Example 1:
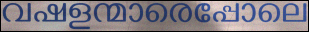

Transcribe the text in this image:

വഷളന്മാരെപ്പോലെ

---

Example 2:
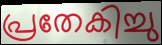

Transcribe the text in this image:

പ്രതേകിച്ചു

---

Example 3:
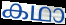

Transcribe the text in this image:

കഥാ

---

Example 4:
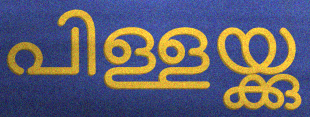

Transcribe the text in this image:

പിള്ളയ്ക്കു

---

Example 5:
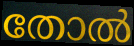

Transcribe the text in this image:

തോൽ